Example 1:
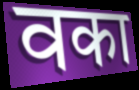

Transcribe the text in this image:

वका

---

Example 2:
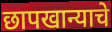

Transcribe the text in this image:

छापखान्याचे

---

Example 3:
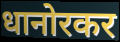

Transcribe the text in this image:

धानोरकर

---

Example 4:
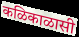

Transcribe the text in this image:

कळिकाळासी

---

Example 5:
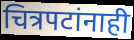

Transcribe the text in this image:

चित्रपटांनाही